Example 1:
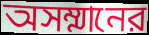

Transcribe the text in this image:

অসম্মানের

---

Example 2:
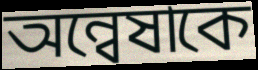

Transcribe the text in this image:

অন্বেষাকে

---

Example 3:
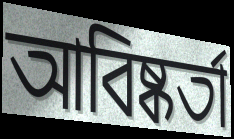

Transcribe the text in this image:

আবিষ্কর্তা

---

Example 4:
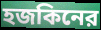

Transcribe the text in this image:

হজকিনের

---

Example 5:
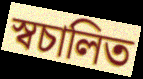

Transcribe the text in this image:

স্বচালিত